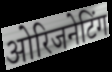
ओरिजनेटिंग